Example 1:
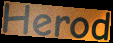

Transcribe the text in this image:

Herod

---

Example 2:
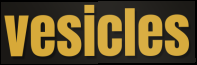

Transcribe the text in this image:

vesicles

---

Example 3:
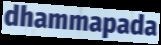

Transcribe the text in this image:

dhammapada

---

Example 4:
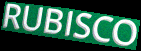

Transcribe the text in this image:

RUBISCO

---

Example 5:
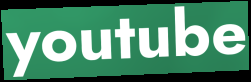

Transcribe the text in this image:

youtube